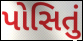
પોસિતું